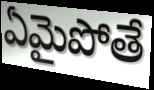
ఏమైపోతే